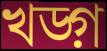
খড়্গ